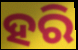
ହରି